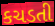
કચડતી